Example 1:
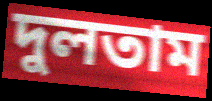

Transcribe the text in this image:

দুলতাম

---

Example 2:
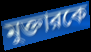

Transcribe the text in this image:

মুক্তারকে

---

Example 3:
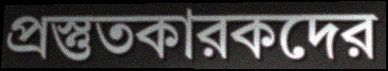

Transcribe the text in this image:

প্রস্তুতকারকদের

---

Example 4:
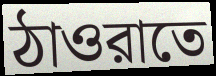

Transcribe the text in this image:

ঠাওরাতে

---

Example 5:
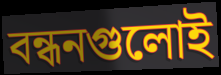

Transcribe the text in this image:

বন্ধনগুলোই